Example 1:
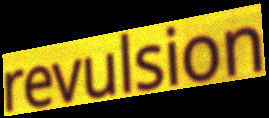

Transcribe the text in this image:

revulsion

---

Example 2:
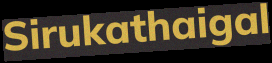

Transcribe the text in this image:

Sirukathaigal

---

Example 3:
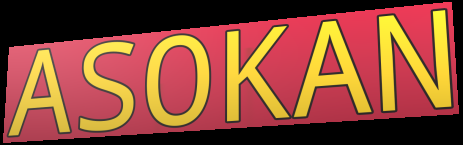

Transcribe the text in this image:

ASOKAN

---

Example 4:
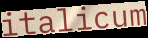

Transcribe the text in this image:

italicum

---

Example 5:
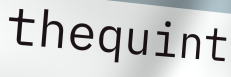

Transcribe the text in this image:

thequint